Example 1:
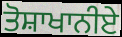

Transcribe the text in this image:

ਤੋਸ਼ਾਖਾਨੀਏ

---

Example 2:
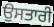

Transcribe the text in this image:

ਉਸਤਾਰੀ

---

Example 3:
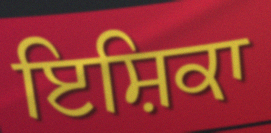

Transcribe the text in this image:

ਇਸ਼ਿਕਾ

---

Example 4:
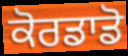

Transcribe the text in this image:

ਕੋਰਡਾਡੋ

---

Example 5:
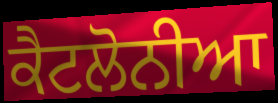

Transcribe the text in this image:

ਕੈਟਲੋਨੀਆ